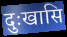
दुःखासि